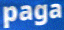
paga